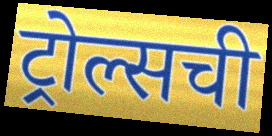
ट्रोल्सची